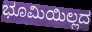
ಭೂಮಿಯಿಲ್ಲದ